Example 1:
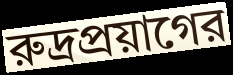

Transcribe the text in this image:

রুদ্রপ্রয়াগের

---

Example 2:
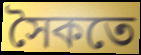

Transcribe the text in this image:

সৈকতে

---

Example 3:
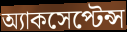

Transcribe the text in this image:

অ্যাকসেপ্টেন্স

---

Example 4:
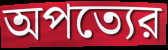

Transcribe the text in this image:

অপত্যের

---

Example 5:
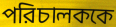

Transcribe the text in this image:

পরিচালককে